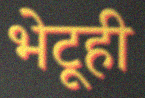
भेटूही